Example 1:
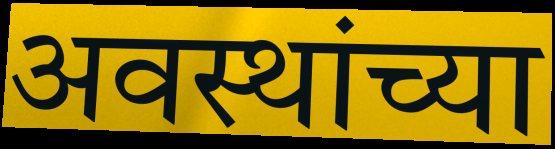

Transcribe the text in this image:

अवस्थांच्या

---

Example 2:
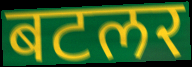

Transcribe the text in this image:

बटलर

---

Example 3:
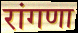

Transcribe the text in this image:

रांगणा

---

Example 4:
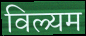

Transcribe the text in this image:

विल्यम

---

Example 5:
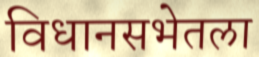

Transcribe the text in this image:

विधानसभेतला